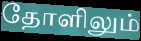
தோளிலும்